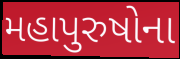
મહાપુરુષોના